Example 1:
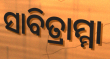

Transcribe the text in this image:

ସାବିତ୍ରାମ୍ମା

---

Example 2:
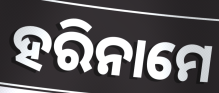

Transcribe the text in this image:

ହରିନାମେ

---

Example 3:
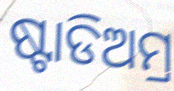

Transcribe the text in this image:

ଷ୍ଟାଡିଅମ୍ର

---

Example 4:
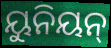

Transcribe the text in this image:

ୟୁନିୟନ୍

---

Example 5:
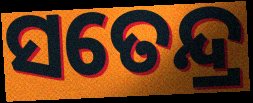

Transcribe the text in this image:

ସତେନ୍ଦ୍ର